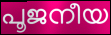
പൂജനീയ